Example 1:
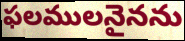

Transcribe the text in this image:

ఫలములనైనను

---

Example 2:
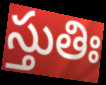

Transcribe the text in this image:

స్తుతిః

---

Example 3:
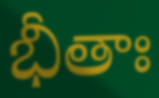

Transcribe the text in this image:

భీతాః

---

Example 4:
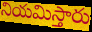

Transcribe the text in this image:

నియమిస్తారు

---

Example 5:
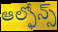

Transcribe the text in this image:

ఆల్ఫోన్స్